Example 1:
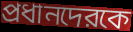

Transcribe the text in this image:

প্রধানদেরকে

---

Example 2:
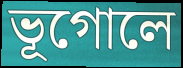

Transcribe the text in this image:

ভূগোলে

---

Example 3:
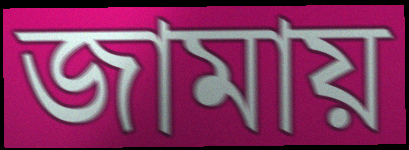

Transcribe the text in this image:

জামায়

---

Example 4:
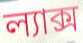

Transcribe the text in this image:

ল্যাক্স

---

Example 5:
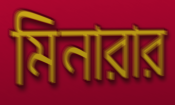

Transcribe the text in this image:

মিনারার